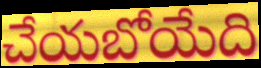
చేయబోయేది